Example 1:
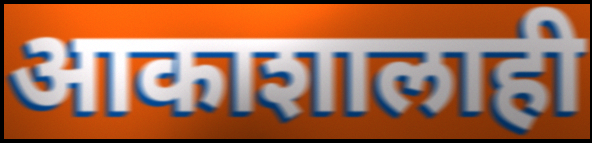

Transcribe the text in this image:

आकाशालाही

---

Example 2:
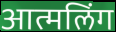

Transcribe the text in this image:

आत्मलिंग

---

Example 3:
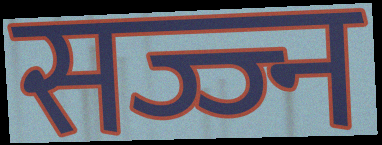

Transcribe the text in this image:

सज्ज्न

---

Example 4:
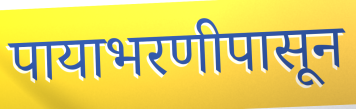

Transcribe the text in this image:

पायाभरणीपासून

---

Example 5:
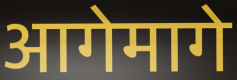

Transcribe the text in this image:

आगेमागे